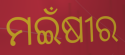
ମଇଁଷୀର